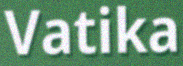
Vatika